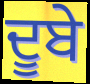
ਦੂਬੇ